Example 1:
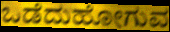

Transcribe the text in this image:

ಒಡೆದುಹೋಗುವ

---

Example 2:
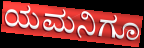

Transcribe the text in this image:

ಯಮನಿಗೂ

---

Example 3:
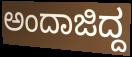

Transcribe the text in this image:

ಅಂದಾಜಿದ್ದ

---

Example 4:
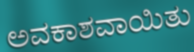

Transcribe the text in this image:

ಅವಕಾಶವಾಯಿತು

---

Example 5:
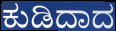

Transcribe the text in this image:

ಕುಡಿದಾದ